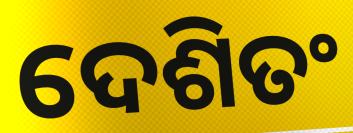
ଦେଶିତଂ